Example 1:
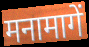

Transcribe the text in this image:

मनामागें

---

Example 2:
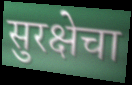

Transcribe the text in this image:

सुरक्षेचा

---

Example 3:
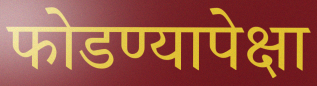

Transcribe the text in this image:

फोडण्यापेक्षा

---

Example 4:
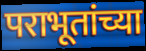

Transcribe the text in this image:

पराभूतांच्या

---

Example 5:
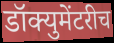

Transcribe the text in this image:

डॉक्युमेंटरीच